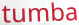
tumba